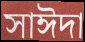
সাঈদা